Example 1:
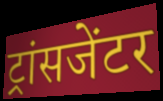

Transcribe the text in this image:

ट्रांसजेंटर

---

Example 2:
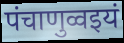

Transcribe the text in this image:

पंचाणुव्वइयं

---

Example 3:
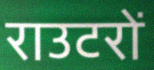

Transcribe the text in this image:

राउटरों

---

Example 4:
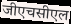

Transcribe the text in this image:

जीएचसीएल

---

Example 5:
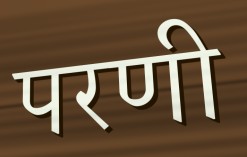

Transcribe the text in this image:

परणी